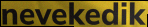
nevekedik